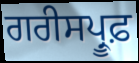
ਗਰੀਸਪ੍ਰੂਫ਼